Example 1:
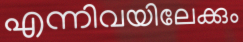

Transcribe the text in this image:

എന്നിവയിലേക്കും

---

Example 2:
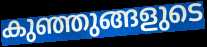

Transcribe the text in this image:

കുഞ്ഞുങ്ങളുടെ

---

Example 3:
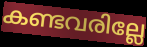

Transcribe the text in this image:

കണ്ടവരില്ലേ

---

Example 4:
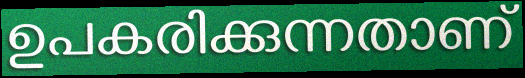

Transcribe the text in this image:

ഉപകരിക്കുന്നതാണ്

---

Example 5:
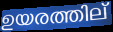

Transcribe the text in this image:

ഉയരത്തില്